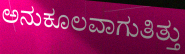
ಅನುಕೂಲವಾಗುತಿತ್ತು